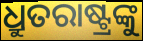
ଧ୍ରୁତରାଷ୍ଟ୍ରଙ୍କୁ